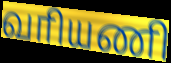
வரியணி